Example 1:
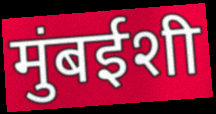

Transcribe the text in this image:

मुंबईशी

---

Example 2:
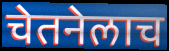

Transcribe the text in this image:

चेतनेलाच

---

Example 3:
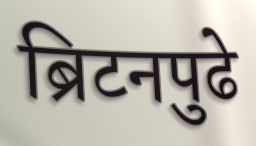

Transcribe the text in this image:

ब्रिटनपुढे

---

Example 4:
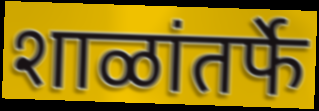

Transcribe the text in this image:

शाळांतर्फे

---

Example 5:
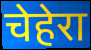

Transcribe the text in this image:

चेहेरा